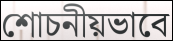
শোচনীয়ভাবে